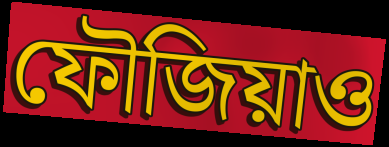
ফৌজিয়াও